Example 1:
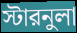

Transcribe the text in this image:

স্টারনুলা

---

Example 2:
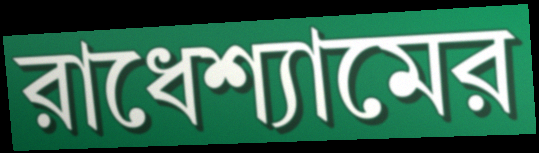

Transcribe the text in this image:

রাধেশ্যামের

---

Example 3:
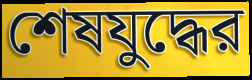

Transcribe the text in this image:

শেষযুদ্ধের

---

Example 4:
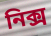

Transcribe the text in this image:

নিক্স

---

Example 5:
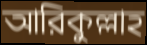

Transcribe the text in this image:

আরিকুল্লাহ